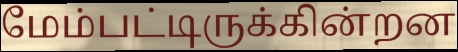
மேம்பட்டிருக்கின்றன